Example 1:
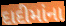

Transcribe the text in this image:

દાદીમાંના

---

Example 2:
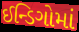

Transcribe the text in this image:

ઈન્ડિગોમાં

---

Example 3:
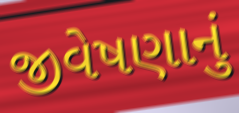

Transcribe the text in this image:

જીવેષણાનું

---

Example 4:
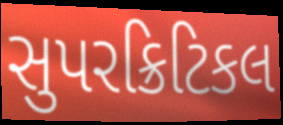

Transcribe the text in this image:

સુપરક્રિટિકલ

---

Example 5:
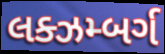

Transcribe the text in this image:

લક્ઝમ્બર્ગ